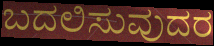
ಬದಲಿಸುವುದರ